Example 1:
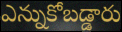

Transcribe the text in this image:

ఎన్నుకోబడ్డారు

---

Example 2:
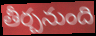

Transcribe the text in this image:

తీర్చనుంది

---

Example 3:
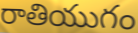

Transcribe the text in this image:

రాతియుగం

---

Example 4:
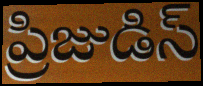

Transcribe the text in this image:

ప్రిజుడిస్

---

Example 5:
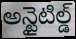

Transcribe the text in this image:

అన్టైటిల్డ్